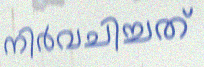
നിർവചിച്ചത്